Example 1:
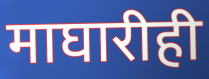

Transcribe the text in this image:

माघारीही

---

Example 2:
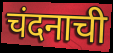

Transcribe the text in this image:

चंदनाची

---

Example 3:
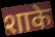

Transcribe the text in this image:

शाके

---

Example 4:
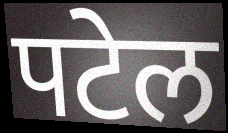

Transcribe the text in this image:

पटेल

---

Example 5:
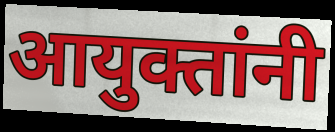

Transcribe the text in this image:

आयुक्तांनी